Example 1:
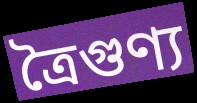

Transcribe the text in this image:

ত্রৈগুণ্য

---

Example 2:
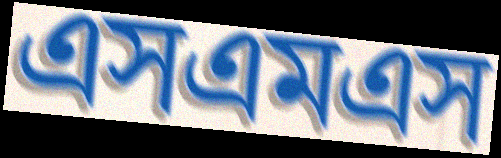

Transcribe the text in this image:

এসএমএস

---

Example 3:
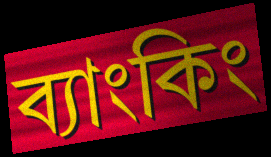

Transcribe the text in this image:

ব্যাংকিং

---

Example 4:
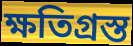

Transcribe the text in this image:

ক্ষতিগ্রস্ত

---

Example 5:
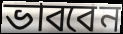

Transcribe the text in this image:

ভাববেন